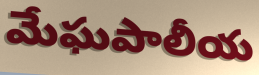
మేఘపాలీయ